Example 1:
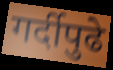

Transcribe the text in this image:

गर्दीपुढे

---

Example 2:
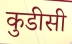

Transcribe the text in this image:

कुडीसी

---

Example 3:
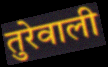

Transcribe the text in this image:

तुरेवाली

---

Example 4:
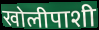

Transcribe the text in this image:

खोलीपाशी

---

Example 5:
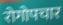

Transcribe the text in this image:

रोगोपचार